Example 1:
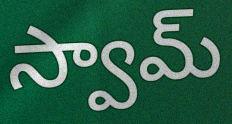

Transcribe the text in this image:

స్వామ్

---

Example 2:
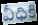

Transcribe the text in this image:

వీధికి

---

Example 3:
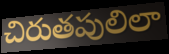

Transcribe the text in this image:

చిరుతపులిలా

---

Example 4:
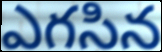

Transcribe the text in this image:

ఎగసిన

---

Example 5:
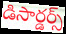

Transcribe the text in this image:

డిసార్డర్స్